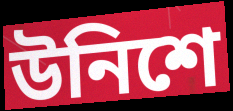
উনিশে